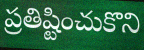
ప్రతిష్టించుకొని